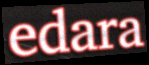
edara